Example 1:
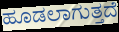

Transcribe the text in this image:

ಹೂಡಲಾಗುತ್ತದೆ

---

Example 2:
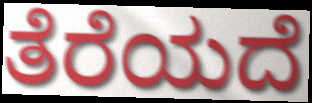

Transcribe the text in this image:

ತೆರೆಯದೆ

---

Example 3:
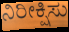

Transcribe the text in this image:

ನಿರೀಕ್ಷಿಸು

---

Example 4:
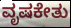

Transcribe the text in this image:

ವೃಷಕೇತು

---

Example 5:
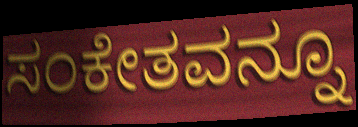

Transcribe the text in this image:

ಸಂಕೇತವನ್ನೂ